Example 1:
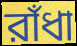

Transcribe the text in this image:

রাঁধা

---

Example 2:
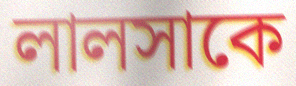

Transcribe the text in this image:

লালসাকে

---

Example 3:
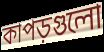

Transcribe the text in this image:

কাপড়গুলো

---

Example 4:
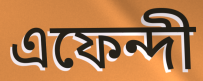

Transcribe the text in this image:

এফেন্দী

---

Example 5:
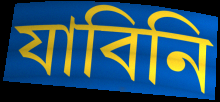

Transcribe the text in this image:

যাবিনি